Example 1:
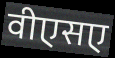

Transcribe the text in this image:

वीएसए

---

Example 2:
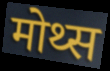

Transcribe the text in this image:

मोथ्स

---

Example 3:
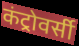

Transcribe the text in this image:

कंट्रोवर्सी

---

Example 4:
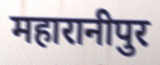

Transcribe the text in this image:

महारानीपुर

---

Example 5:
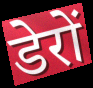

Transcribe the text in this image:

डेरों